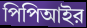
পিপিআইর